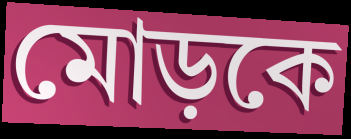
মোড়কে